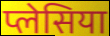
प्लेसिया